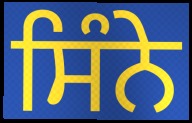
ਸਿੰਨੇ